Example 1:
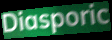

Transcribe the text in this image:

Diasporic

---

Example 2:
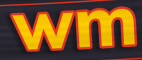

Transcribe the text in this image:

wm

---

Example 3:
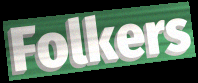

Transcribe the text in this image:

Folkers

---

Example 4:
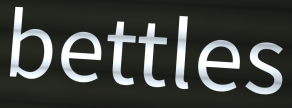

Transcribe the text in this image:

bettles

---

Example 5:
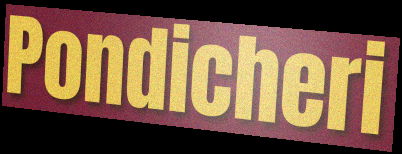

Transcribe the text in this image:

Pondicheri